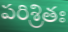
పరిశ్రితః